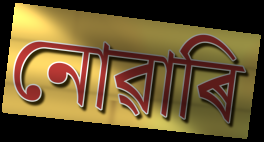
নোৱাৰি